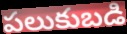
పలుకుబడి